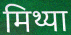
मिथ्या